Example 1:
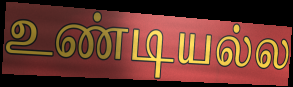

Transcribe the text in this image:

உண்டியல்ல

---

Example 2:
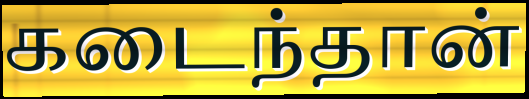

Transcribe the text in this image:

கடைந்தான்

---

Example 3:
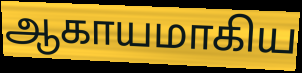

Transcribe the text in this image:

ஆகாயமாகிய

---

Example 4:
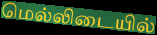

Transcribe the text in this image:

மெல்லிடையில்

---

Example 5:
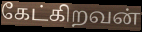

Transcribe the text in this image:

கேட்கிறவன்